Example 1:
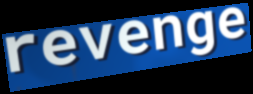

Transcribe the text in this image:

revenge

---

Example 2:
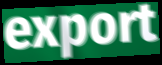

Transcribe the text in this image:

export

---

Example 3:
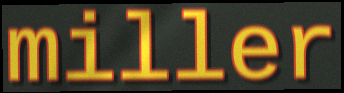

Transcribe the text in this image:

miller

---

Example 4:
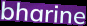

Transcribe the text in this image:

bharine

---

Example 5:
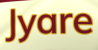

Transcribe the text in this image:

Jyare